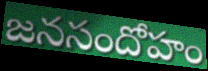
జనసందోహం